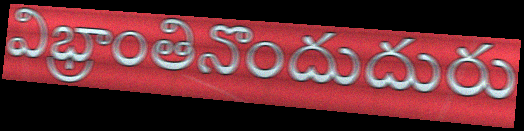
విభ్రాంతినొందుదురు